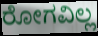
ರೋಗವಿಲ್ಲ